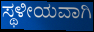
ಸ್ಥಳೀಯವಾಗಿ